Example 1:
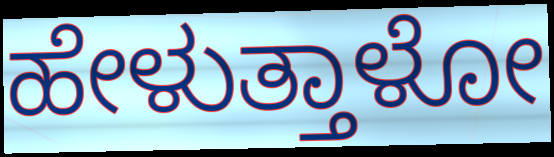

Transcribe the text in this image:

ಹೇಳುತ್ತಾಳೋ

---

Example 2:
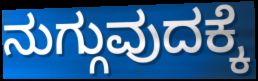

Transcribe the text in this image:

ನುಗ್ಗುವುದಕ್ಕೆ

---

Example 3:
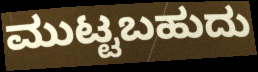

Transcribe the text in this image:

ಮುಟ್ಟಬಹುದು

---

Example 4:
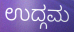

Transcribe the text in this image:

ಉದ್ಗಮ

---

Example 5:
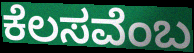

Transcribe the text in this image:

ಕೆಲಸವೆಂಬ